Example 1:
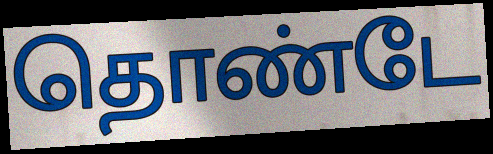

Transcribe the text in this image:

தொண்டே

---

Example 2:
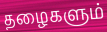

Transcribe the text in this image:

தழைகளும்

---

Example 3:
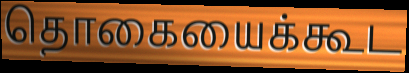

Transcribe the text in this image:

தொகையைக்கூட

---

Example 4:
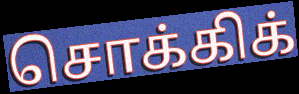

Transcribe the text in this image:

சொக்கிக்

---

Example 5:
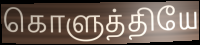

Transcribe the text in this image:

கொளுத்தியே